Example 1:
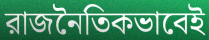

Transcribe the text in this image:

রাজনৈতিকভাবেই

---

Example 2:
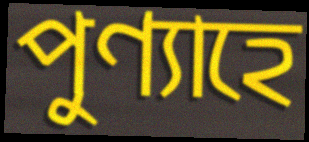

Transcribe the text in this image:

পুণ্যাহে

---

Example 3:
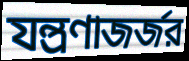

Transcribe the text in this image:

যন্ত্রণাজর্জর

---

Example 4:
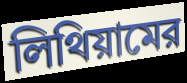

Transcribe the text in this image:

লিথিয়ামের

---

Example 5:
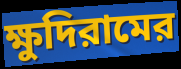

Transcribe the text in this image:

ক্ষুদিরামের